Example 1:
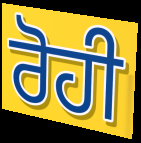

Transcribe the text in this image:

ਰੋਹੀ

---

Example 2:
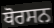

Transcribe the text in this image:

ਥੋਰਸਨ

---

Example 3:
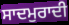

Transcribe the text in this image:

ਸਾਦਮੁਰਾਦੀ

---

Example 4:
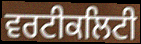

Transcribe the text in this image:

ਵਰਟੀਕਲਿਟੀ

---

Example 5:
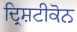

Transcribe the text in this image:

ਦ੍ਰਿਸ਼ਟੀਕੋਨ